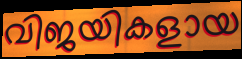
വിജയികളായ